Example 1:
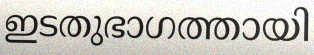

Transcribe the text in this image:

ഇടതുഭാഗത്തായി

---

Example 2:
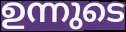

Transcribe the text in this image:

ഉന്നുടെ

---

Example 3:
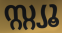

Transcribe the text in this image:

സ്റ്റ്യൂ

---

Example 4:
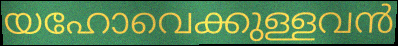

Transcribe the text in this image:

യഹോവെക്കുള്ളവൻ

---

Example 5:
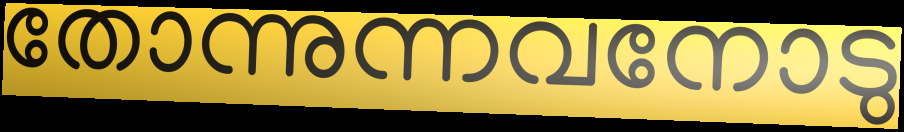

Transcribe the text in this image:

തോന്നുന്നവനോടു